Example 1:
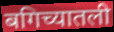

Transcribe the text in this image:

बगिच्यातली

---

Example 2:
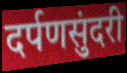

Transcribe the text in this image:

दर्पणसुंदरी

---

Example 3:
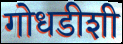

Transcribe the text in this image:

गोधडीशी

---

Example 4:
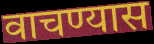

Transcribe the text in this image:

वाचण्यास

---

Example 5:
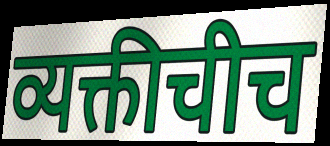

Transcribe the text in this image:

व्यक्तीचीच